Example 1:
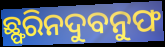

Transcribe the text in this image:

ଛ୍ଫରିନଦୁବନୁଫ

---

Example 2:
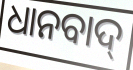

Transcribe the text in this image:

ଧାନବାଦ୍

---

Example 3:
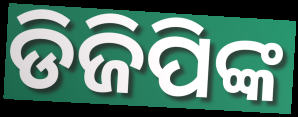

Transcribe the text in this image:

ଡିଜିପିଙ୍କ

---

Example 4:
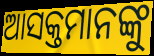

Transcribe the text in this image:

ଆସକ୍ତମାନଙ୍କୁ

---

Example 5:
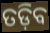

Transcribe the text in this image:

ତଡ଼ିବ